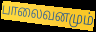
பாலைவனமும்